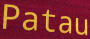
Patau